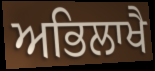
ਅਭਿਲਾਖੈ